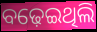
ବଢ଼େଇଥିଲି